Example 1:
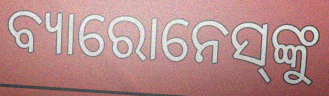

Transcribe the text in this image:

ବ୍ୟାରୋନେସ୍‌ଙ୍କୁ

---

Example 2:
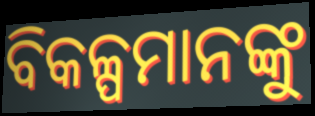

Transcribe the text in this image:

ବିକଳ୍ପମାନଙ୍କୁ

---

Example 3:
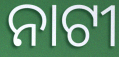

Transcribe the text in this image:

ନାଟୀ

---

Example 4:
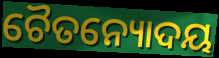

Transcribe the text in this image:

ଚୈତନ୍ୟୋଦୟ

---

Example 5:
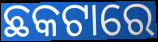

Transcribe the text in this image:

ଛକଟାରେ